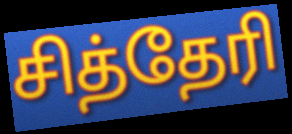
சித்தேரி